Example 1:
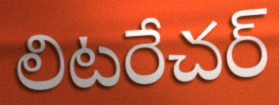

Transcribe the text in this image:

లిటరేచర్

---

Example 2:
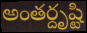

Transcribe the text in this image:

అంతర్దృష్టి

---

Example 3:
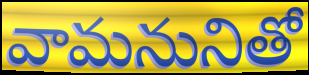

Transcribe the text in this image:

వామనునితో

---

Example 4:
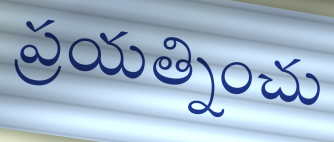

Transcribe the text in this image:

ప్రయత్నించు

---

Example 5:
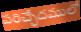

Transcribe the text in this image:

పరిచ్ఛేదములో